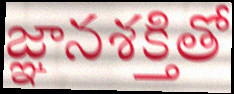
జ్ఞానశక్తితో